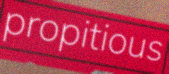
propitious